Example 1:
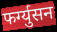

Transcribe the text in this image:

फर्ग्युसन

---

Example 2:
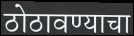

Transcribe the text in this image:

ठोठावण्याचा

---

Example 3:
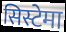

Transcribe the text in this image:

सिस्टेमा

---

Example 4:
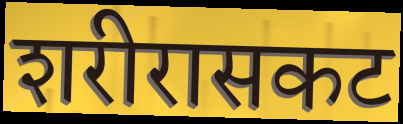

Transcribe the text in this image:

शरीरासकट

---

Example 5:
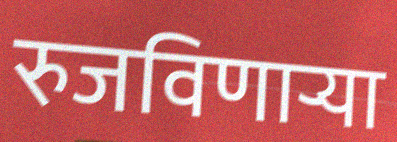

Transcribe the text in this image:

रुजविणाऱ्या